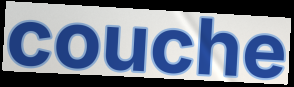
couche